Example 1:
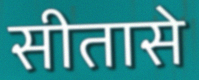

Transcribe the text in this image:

सीतासे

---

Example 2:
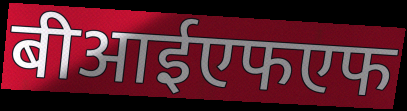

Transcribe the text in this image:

बीआईएफएफ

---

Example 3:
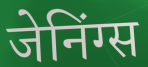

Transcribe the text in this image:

जेनिंग्स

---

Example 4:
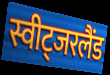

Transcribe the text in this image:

स्वीट्जरलैंड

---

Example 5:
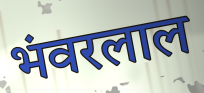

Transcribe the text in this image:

भंवरलाल